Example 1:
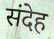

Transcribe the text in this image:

संदेह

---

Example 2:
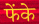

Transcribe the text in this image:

फेंके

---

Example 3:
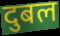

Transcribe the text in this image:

दुबल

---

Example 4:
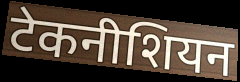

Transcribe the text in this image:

टेकनीशियन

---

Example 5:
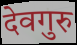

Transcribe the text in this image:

देवगुरु